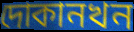
দোকানখন